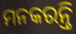
ମନକରନ୍ତି